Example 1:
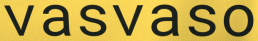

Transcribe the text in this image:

vasvaso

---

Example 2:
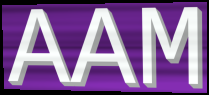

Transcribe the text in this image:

AAM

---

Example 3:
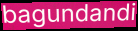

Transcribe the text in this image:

bagundandi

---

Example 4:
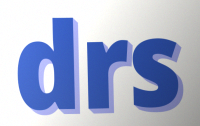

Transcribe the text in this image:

drs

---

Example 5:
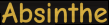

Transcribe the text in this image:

Absinthe